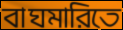
বাঘমারিতে